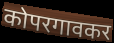
कोपरगावकर